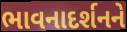
ભાવનાદર્શનને